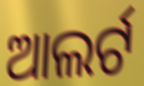
ଆଲର୍ଟ